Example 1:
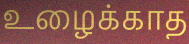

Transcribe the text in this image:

உழைக்காத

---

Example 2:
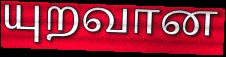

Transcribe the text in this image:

யுறவான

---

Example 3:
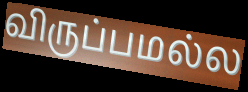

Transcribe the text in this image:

விருப்பமல்ல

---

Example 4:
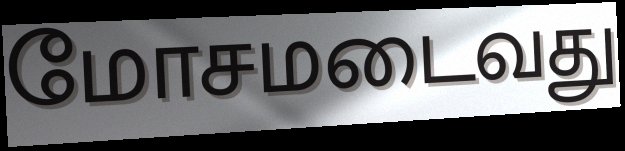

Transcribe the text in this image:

மோசமடைவது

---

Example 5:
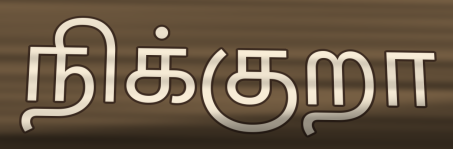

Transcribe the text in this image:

நிக்குறா